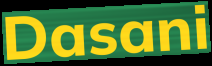
Dasani